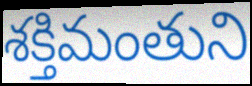
శక్తిమంతుని